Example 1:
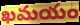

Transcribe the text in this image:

ఖమయం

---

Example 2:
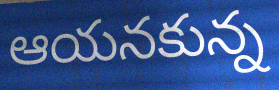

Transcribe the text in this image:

ఆయనకున్న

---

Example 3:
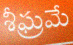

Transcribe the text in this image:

శీఘ్రమే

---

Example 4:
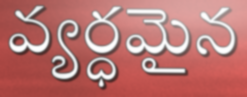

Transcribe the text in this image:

వ్యర్ధమైన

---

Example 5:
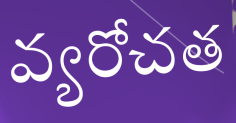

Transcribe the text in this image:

వ్యరోచత